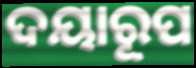
ଦୟାରୂପ